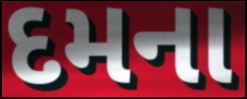
દમના